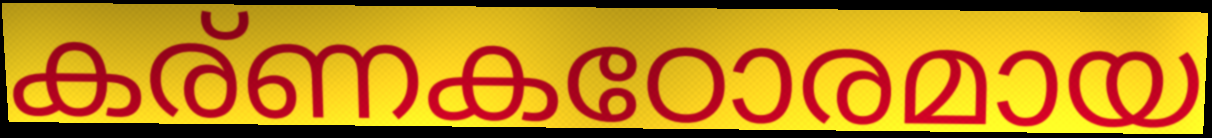
കര്ണകഠോരമായ